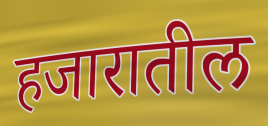
हजारातील